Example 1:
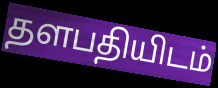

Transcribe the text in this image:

தளபதியிடம்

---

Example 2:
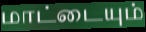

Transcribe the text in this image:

மாட்டையும்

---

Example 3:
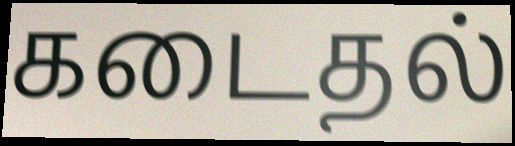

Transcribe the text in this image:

கடைதல்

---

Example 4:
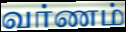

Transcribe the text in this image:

வர்ணம்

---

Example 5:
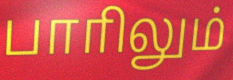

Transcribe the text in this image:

பாரிலும்